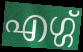
എഗ്ഗ്